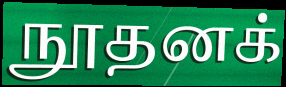
நூதனக்